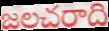
జలచరాది